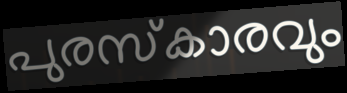
പുരസ്കാരവും